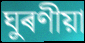
ঘুৰণীয়া